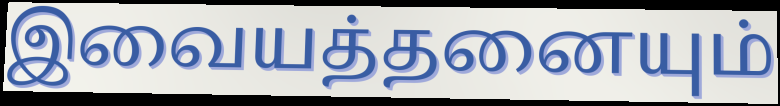
இவையத்தனையும்